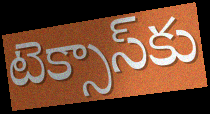
టెక్సాస్‌కు